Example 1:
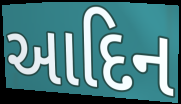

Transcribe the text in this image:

આદિન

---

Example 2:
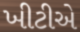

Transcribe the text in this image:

ખીટીએ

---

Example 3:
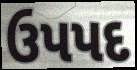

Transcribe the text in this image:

ઉપપદ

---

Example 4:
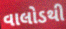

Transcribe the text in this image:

વાલોડથી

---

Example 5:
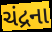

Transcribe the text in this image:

ચંદ્રના